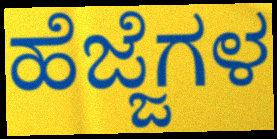
ಹೆಜ್ಜೆಗಳ